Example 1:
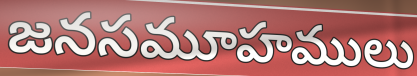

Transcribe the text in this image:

జనసమూహములు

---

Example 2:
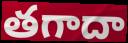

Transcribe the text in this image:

తగాదా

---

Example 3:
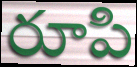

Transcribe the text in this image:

రూపి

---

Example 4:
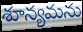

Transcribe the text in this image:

శూన్యమను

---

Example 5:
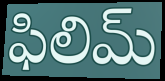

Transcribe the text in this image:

ఫిలిమ్